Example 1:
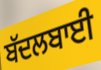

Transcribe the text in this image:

ਬੱਦਲਬਾਈ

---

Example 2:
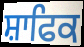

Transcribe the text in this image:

ਸ਼ਾਫਿਕ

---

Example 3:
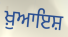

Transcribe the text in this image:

ਖ਼ੁਆਇਸ਼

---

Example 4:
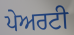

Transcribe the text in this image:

ਪੇਅਰਟੀ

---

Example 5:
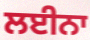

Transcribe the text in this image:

ਲਈਨਾ